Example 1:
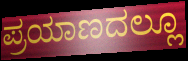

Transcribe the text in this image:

ಪ್ರಯಾಣದಲ್ಲೂ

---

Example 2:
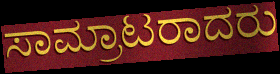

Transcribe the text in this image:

ಸಾಮ್ರಾಟರಾದರು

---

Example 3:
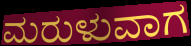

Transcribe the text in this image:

ಮರುಳುವಾಗ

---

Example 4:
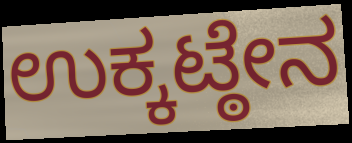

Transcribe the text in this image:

ಉಕ್ಕಟ್ಠೇನ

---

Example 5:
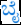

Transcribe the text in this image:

ಬೈ